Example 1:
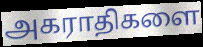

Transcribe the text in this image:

அகராதிகளை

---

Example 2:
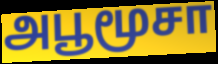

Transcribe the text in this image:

அபூமூசா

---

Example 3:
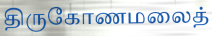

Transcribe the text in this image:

திருகோணமலைத்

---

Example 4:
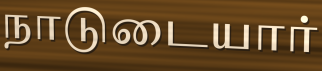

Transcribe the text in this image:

நாடுடையார்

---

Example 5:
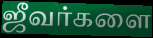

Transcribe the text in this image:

ஜீவர்களை